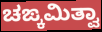
ಚಙ್ಕಮಿತ್ವಾ